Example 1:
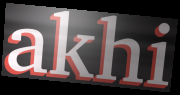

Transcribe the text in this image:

akhi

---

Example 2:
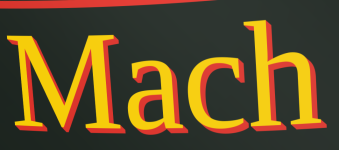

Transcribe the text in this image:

Mach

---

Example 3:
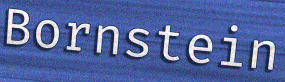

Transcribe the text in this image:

Bornstein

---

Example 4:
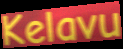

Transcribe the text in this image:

Kelavu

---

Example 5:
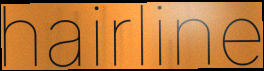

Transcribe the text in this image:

hairline